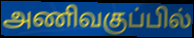
அணிவகுப்பில்